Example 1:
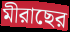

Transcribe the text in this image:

মীরাছের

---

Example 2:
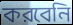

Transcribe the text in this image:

করবেনি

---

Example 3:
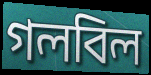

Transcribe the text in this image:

গলবিল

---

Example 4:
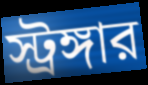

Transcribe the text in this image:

স্ট্রঙ্গার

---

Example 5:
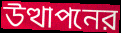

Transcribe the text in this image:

উত্থাপনের